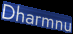
Dharmnu